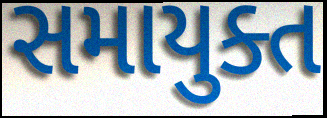
સમાયુક્ત